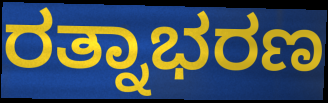
ರತ್ನಾಭರಣ